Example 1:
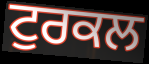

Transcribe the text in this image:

ਟੁਰਕਲ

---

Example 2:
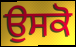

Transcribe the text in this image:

ਉਸਕੋ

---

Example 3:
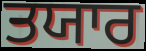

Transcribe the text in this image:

ਤਯਾਰ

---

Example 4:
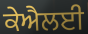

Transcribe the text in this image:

ਕੇਐਲਈ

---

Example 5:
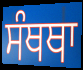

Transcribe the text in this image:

ਸੰਥਥਾ